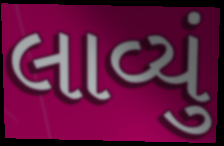
લાવ્યું